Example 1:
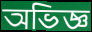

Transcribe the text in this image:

অভিজ্ঞ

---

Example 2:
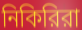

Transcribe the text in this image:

নিকিরিরা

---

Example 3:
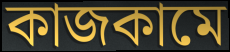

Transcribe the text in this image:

কাজকামে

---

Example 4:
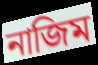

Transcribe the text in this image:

নাজিম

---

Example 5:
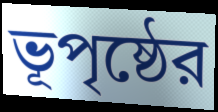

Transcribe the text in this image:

ভূপৃষ্ঠের